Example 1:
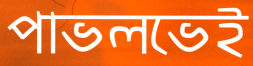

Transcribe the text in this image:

পাভলভেই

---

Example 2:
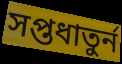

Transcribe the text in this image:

সপ্তধাতুর্ন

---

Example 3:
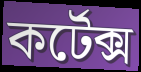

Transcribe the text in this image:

কর্টেক্স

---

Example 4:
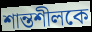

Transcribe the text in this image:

শান্তশীলকে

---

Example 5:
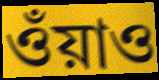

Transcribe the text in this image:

ওঁয়াও